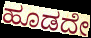
ಹೂಡದೇ